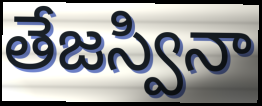
తేజస్వినా